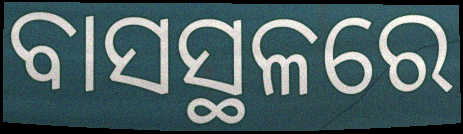
ବାସସ୍ଥଳରେ